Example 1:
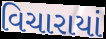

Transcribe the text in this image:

વિચારાયાં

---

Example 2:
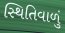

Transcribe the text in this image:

સ્થિતિવાળું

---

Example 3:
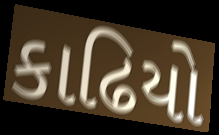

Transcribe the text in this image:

કાઢિયો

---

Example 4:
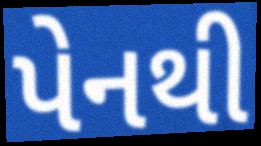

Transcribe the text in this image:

પેનથી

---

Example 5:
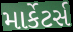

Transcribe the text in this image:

માર્કેટર્સ